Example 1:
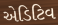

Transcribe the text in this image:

એડિટિવ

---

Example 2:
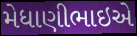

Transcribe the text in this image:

મેધાણીભાઇએ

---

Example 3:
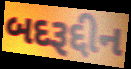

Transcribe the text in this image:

બદરૂદ્દીન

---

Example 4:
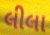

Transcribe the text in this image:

લીલા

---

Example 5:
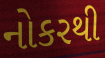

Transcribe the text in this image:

નોકરથી